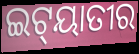
ଇଟ୍‍ୟାତୀର